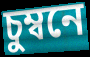
চুম্বনে